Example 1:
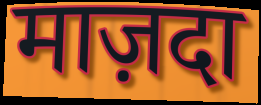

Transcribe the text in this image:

माज़दा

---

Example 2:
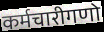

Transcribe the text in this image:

कर्मचारीगणो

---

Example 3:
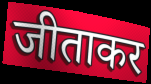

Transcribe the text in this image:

जीताकर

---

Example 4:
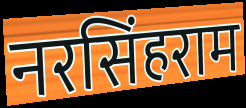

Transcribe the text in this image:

नरसिंहराम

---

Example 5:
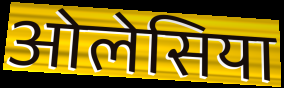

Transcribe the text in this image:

ओलेसिया